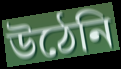
উঠেনি